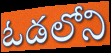
ఓడలోని